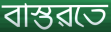
বাস্তৱতে